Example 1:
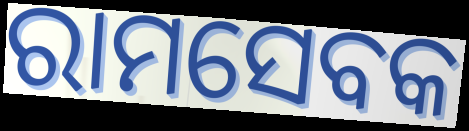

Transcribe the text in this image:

ରାମସେବକ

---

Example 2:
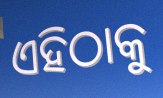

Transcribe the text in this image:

ଏହିଠାକୁ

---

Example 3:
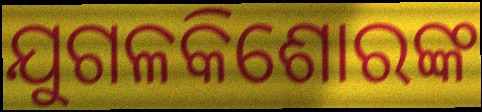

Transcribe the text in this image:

ଯୁଗଳକିଶୋରଙ୍କ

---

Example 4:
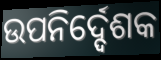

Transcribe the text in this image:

ଉପନିର୍ଦ୍ଦେଶକ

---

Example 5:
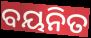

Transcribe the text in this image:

ବୟନିତ